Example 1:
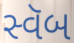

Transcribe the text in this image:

સ્વૅબ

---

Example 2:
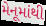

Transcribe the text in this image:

મેનૂમાંથી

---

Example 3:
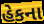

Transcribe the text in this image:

હેકના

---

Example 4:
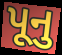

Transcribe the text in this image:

પૂનુ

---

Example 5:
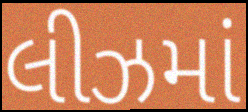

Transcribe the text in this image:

લીઝમાં